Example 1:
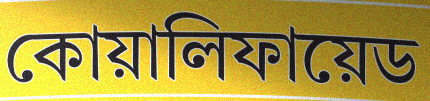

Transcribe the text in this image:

কোয়ালিফায়েড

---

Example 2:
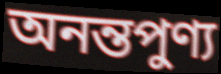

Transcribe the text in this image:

অনন্তপুণ্য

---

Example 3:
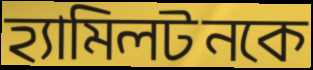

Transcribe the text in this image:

হ্যামিলটনকে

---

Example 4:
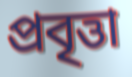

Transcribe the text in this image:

প্রবৃত্তা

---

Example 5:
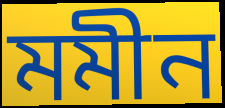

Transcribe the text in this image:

মমীন